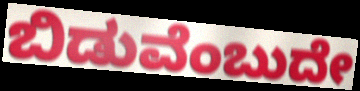
ಬಿಡುವೆಂಬುದೇ